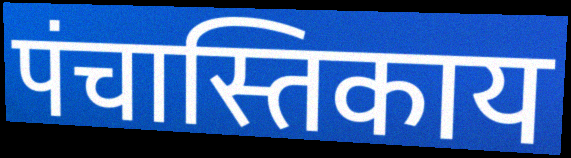
पंचास्तिकाय